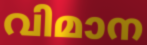
വിമാന